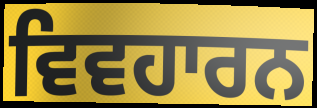
ਵਿਵਹਾਰਨ